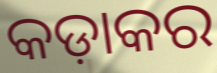
କଡ଼ାକର